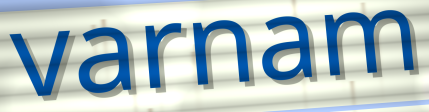
varnam